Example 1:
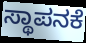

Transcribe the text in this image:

ಸ್ಥಾಪನಕೆ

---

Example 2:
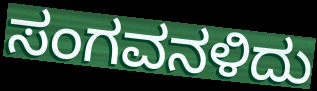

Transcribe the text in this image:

ಸಂಗವನಳಿದು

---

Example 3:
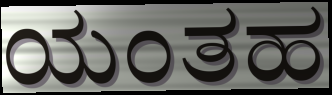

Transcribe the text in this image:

ಯಂತಹ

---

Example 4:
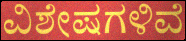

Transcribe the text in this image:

ವಿಶೇಷಗಳಿವೆ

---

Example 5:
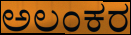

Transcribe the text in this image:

ಅಲಂಕರ